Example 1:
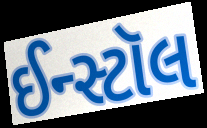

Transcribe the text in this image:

ઈન્સ્ટૉલ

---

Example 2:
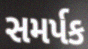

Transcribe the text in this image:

સમર્પક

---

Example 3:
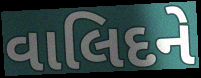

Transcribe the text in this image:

વાલિદને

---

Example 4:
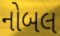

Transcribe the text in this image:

નોબલ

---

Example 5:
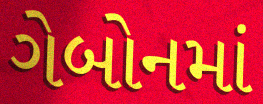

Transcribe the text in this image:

ગેબોનમાં